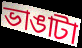
ভাঙাটা